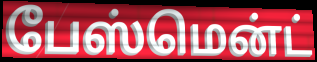
பேஸ்மென்ட்